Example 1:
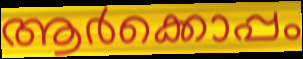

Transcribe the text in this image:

ആർക്കൊപ്പം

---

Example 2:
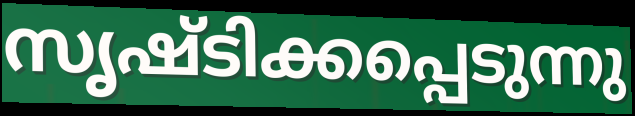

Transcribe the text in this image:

സൃഷ്ടിക്കപ്പെടുന്നു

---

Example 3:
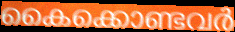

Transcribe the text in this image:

കൈക്കൊണ്ടവർ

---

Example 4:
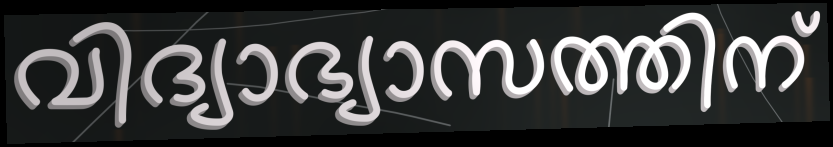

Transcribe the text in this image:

വിദ്യാഭ്യാസത്തിന്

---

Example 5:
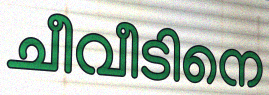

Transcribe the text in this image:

ചീവീടിനെ